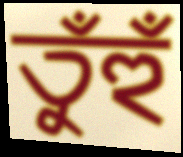
তুঁহুঁ